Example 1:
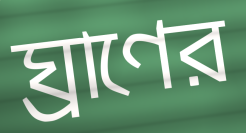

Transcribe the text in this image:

ঘ্রাণের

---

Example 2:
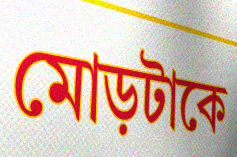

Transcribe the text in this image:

মোড়টাকে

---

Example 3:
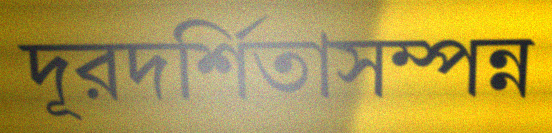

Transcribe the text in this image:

দূরদর্শিতাসম্পন্ন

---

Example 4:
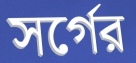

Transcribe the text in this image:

সর্গের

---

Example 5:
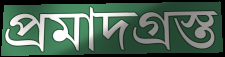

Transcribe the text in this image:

প্রমাদগ্রস্ত